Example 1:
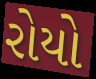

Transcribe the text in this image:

રોયો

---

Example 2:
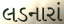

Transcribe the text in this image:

લડનારાં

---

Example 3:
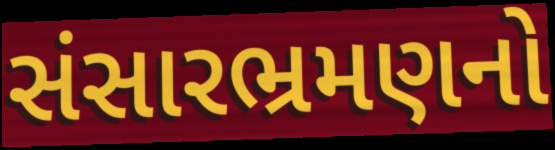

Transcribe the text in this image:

સંસારભ્રમણનો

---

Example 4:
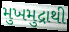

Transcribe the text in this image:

મુખમુદ્રાથી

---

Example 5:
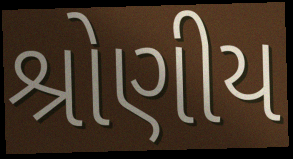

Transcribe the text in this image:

શ્રોણીય